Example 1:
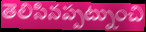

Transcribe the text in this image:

తెలిసినప్పట్నుంచి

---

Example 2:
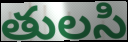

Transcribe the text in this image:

తులసి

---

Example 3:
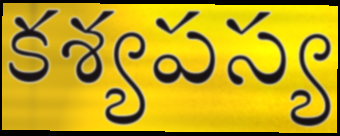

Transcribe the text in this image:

కశ్యపస్య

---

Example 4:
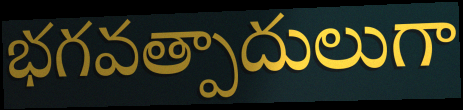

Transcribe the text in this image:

భగవత్పాదులుగా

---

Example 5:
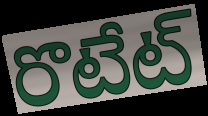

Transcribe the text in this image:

రొటేట్